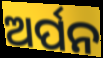
ଅର୍ପନ